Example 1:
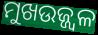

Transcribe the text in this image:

ମୁଖଉଜ୍ଜ୍ୱଳ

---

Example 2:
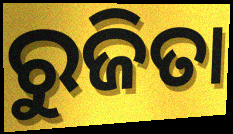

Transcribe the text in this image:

ରୁଜିତା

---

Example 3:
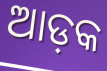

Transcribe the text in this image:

ଆଡ଼କ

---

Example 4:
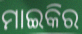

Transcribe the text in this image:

ମାଇକିର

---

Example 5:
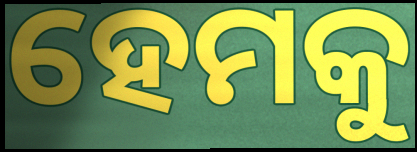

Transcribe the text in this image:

ହେମକୁ